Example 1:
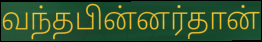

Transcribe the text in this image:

வந்தபின்னர்தான்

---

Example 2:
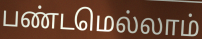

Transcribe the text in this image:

பண்டமெல்லாம்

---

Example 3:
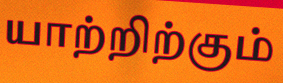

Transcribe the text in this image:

யாற்றிற்கும்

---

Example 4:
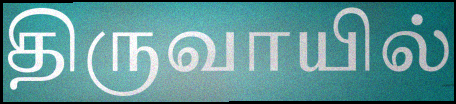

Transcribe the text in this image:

திருவாயில்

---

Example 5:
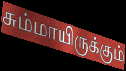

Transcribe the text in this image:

சும்மாயிருக்கும்